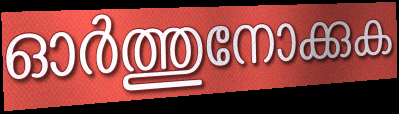
ഓർത്തുനോക്കുക